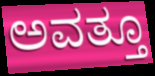
ಅವತ್ತೂ